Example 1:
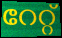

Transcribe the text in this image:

റേറ്റ്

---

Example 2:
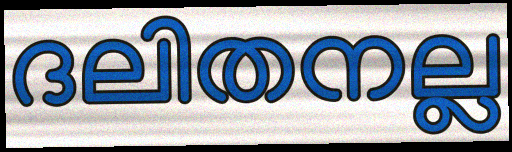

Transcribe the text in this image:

ദലിതനല്ല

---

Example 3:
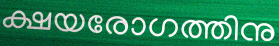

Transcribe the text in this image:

ക്ഷയരോഗത്തിനു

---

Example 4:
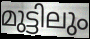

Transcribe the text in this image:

മുട്ടിലും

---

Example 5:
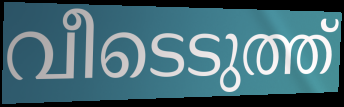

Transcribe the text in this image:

വീടെടുത്ത്